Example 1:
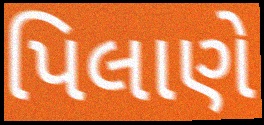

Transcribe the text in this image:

પિલાણે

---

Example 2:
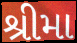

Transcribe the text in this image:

શ્રીમા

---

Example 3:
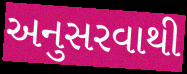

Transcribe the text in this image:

અનુસરવાથી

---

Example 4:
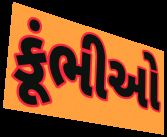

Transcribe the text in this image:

કૂંભીઓ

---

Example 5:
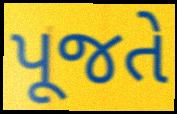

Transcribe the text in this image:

પૂજતે